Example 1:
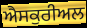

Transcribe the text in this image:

ਐਸਕੁਰੀਅਲ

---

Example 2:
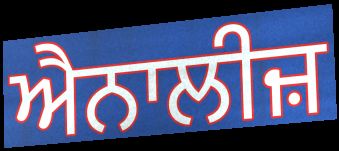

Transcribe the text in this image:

ਐਨਾਲੀਜ਼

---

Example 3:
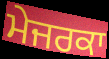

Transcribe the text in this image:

ਮੇਜਰਕਾ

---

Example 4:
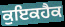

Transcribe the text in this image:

ਕੁਇਕਹੈਕ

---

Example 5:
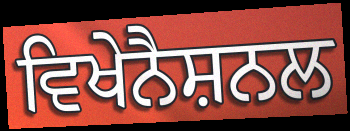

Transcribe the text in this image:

ਵਿਖੇਨੈਸ਼ਨਲ